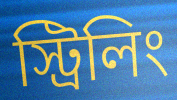
স্ট্রিলিং